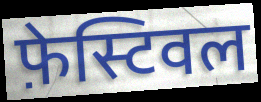
फ़ेस्टिवल